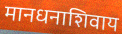
मानधनाशिवाय